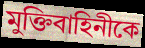
মুক্তিবাহিনীকে